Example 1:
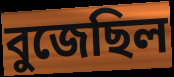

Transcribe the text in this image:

বুজেছিল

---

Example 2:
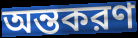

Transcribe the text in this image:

অন্তকরণ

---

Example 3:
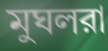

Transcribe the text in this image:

মুঘলরা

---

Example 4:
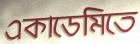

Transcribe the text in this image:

একাডেমিতে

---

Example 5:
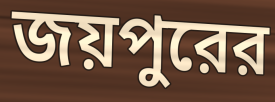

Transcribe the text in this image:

জয়পুরের